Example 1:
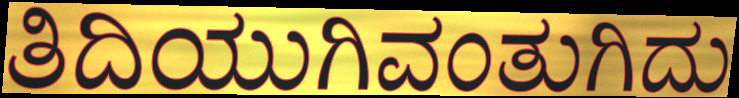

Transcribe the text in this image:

ತಿದಿಯುಗಿವಂತುಗಿದು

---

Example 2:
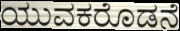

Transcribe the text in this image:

ಯುವಕರೊಡನೆ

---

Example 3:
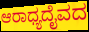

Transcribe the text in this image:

ಆರಾಧ್ಯದೈವದ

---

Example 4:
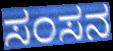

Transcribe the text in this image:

ಸಂಸನ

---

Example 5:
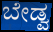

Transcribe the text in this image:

ಬೇಡ್ವ